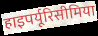
हाइपर्यूरिसीमिया